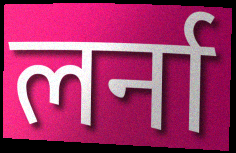
लर्ना